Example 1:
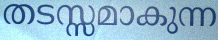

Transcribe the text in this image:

തടസ്സമാകുന്ന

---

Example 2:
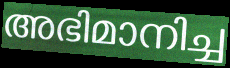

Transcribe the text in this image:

അഭിമാനിച്ച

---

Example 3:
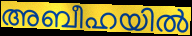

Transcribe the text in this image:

അബീഹയിൽ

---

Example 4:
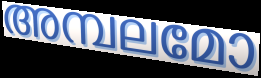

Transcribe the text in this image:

അമ്പലമോ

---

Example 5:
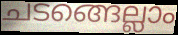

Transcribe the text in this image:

ചടങ്ങെല്ലാം